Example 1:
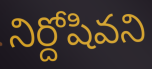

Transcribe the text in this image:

నిర్దోషివని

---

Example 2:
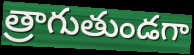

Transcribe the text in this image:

త్రాగుతుండగా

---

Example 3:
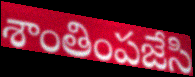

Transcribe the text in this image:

శాంతింపజేసి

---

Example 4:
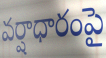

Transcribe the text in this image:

వర్షాధారంపై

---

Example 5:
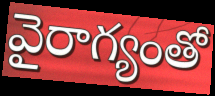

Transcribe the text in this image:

వైరాగ్యంతో